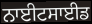
ਨਾਈਟਸਾਈਡ